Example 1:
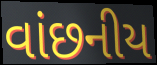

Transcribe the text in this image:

વાંછનીય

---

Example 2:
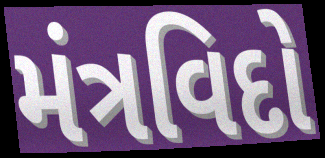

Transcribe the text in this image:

મંત્રવિદો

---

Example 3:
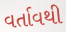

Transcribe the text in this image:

વર્તાવથી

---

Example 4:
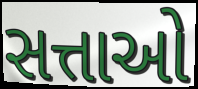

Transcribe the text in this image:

સત્તાઓ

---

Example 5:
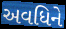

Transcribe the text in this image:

અવધિને